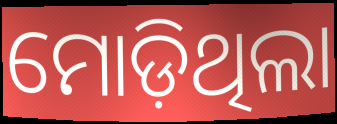
ମୋଡ଼ିଥିଲା